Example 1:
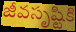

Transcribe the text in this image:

జీవసృష్టికి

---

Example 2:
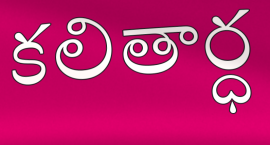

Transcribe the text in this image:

కలితార్ధ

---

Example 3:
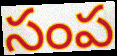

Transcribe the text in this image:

సంప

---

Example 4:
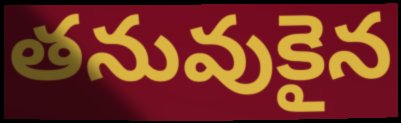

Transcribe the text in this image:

తనువుకైన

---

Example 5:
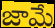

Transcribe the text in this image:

జామే